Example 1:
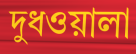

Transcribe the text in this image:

দুধওয়ালা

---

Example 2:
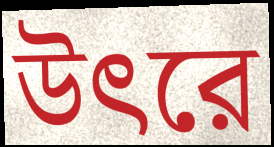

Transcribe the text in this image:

উৎরে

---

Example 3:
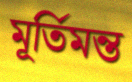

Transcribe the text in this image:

মূর্তিমন্ত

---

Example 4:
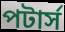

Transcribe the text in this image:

পটার্স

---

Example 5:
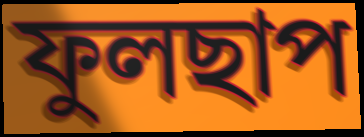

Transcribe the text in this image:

ফুলছাপ